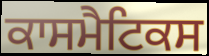
ਕਾਸਮੈਟਿਕਸ